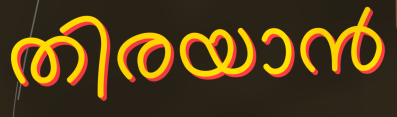
തിരയാൻ